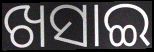
ଖସାଇ